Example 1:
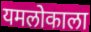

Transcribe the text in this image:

यमलोकाला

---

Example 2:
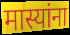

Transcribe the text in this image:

मास्यांना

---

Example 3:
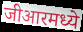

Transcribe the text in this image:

जीआरमध्ये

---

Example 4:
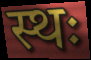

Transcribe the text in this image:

स्थः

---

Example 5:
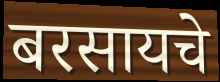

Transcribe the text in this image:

बरसायचे